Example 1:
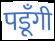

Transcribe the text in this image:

पडूँगी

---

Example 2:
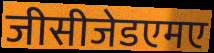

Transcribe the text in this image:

जीसीजेडएमए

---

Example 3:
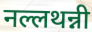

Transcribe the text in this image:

नल्लथन्नी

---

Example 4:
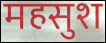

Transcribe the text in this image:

महसुश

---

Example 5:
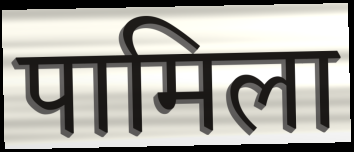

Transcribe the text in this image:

पामिला